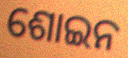
ଶୋଇନ